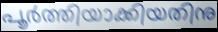
പൂർത്തിയാക്കിയതിനു